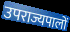
उपराज्यपालों